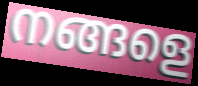
നങ്ങളെ